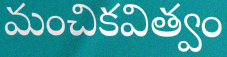
మంచికవిత్వం